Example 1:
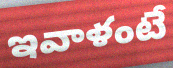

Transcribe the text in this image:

ఇవాళంటే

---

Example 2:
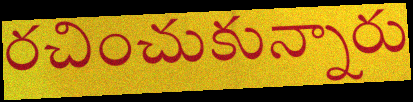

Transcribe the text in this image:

రచించుకున్నారు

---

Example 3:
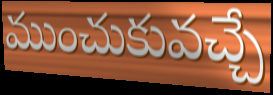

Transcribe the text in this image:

ముంచుకువచ్చే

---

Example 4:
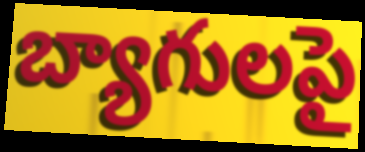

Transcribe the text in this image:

బ్యాగులపై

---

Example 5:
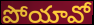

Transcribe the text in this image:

పోయావో